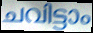
ചവിട്ടാം